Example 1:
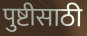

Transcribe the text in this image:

पुष्टीसाठी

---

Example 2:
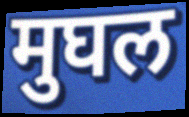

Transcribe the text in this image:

मुघल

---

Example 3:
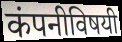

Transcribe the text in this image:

कंपनीविषयी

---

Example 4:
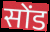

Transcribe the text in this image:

सोंड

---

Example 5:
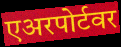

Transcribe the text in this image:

एअरपोर्टवर